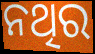
ନଥିର